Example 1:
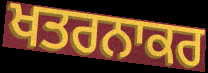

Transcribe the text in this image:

ਖਤਰਨਾਕਰ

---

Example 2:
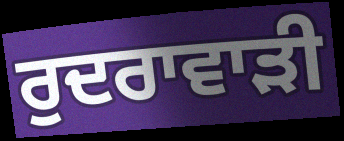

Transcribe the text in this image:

ਰੁਦਰਾਵਾੜੀ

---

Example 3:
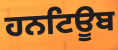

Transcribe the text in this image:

ਹਨਟਿਊਬ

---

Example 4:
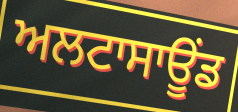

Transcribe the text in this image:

ਅਲਟਾਸਾਊਂਡ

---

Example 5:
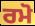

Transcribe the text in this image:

ਰਮੋ